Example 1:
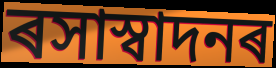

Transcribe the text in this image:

ৰসাস্বাদনৰ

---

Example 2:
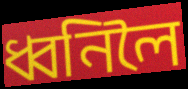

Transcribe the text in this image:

ধ্বনিলৈ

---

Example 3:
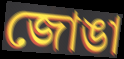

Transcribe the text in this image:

জোঙা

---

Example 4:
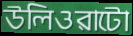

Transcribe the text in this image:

উলিওৱাটো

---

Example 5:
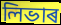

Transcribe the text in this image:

লিভাৰ